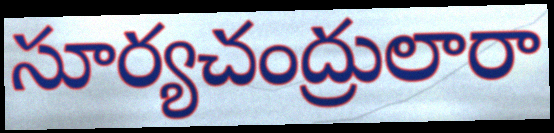
సూర్యచంద్రులారా